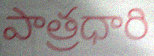
పాత్రధారి